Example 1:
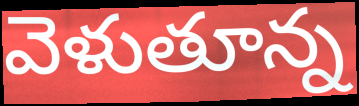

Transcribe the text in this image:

వెళుతూన్న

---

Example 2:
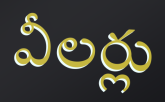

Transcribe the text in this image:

వీలర్లు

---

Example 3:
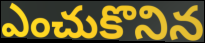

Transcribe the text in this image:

ఎంచుకొనిన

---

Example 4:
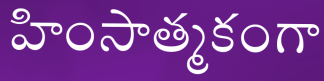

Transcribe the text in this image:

హింసాత్మకంగా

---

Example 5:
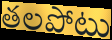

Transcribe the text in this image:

తలపోటు